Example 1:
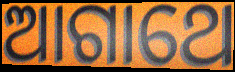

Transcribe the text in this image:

ଆଗାଥେ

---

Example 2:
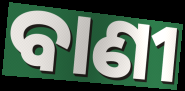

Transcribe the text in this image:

ବାଣୀ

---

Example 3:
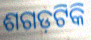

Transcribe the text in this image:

ଶଗଡ଼ଟିକି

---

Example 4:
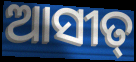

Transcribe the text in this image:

ଆସୀତ୍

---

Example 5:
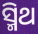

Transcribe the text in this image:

ସ୍ମିଥ